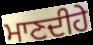
ਮਾਣਦੀਹੇ